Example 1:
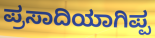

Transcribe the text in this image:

ಪ್ರಸಾದಿಯಾಗಿಪ್ಪ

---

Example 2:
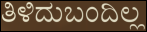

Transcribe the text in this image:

ತಿಳಿದುಬಂದಿಲ್ಲ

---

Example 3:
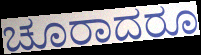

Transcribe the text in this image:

ಚೂರಾದರೂ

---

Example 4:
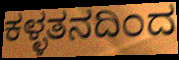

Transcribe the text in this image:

ಕಳ್ಳತನದಿಂದ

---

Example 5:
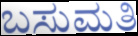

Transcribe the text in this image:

ಬಸುಮತಿ